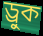
ড্রুক